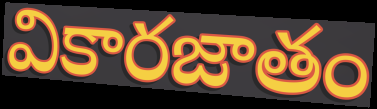
వికారజాతం